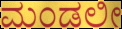
ಮಂಡಲೀ